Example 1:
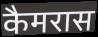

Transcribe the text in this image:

कैमरास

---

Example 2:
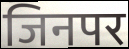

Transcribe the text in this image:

जिनपर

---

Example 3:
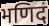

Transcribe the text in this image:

भणिदं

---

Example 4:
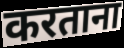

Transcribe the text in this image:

करताना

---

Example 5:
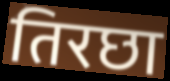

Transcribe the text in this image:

तिरछा